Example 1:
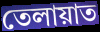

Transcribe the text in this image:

তেলায়াত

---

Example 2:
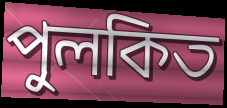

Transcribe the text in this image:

পুলকিত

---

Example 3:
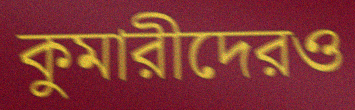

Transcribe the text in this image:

কুমারীদেরও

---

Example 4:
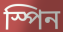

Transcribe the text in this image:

স্পিন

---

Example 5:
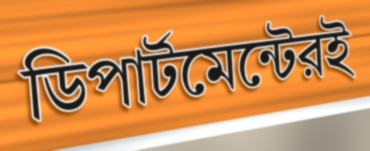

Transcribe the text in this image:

ডিপার্টমেন্টেরই